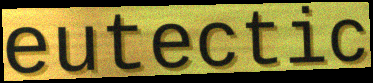
eutectic